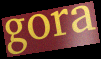
gora